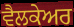
ਵੈਲਕੇਅਰ